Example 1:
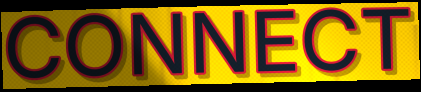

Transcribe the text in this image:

CONNECT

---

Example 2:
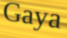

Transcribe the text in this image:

Gaya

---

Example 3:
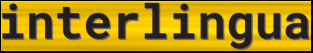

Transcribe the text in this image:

interlingua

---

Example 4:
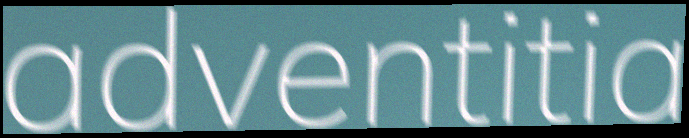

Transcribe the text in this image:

adventitia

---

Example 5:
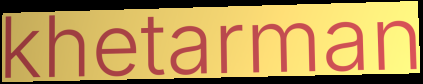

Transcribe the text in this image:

khetarman